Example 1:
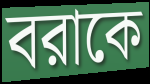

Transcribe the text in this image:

বরাকে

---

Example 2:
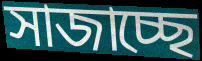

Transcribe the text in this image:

সাজাচ্ছে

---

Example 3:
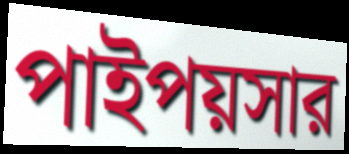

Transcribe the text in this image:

পাইপয়সার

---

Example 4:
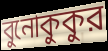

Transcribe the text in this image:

বুনোকুকুর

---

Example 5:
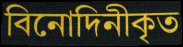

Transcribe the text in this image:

বিনোদিনীকৃত